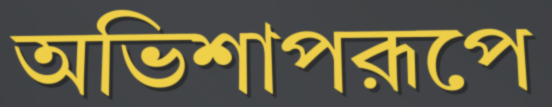
অভিশাপরূপে